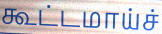
கூட்டமாய்ச்